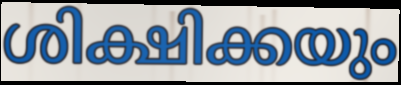
ശിക്ഷിക്കയും